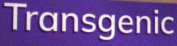
Transgenic